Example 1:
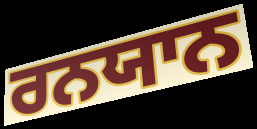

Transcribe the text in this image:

ਰਨਯਾਨ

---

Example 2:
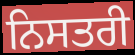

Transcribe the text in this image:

ਨਿਸਤਰੀ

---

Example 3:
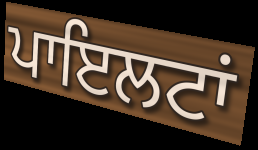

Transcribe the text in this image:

ਪਾਇਲਟਾਂ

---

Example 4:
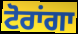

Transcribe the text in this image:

ਟੋਰਾਂਗਾ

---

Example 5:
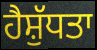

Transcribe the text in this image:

ਹੈਸ਼ੁੱਧਤਾ